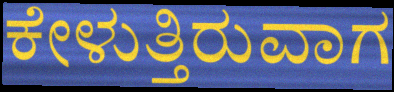
ಕೇಳುತ್ತಿರುವಾಗ